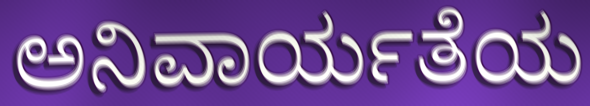
ಅನಿವಾರ್ಯತೆಯ